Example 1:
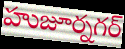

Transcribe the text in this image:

హుజూర్నగర్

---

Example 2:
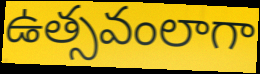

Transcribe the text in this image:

ఉత్సవంలాగా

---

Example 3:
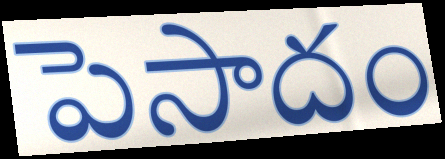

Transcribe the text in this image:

పెసాదం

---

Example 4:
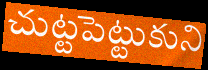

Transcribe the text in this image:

చుట్టపెట్టుకుని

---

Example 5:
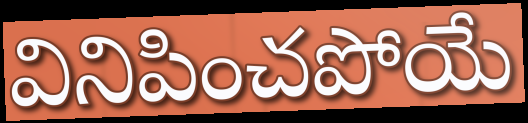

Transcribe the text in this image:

వినిపించపోయే